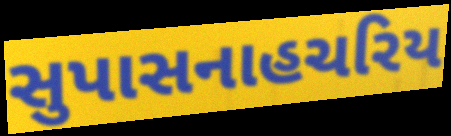
સુપાસનાહચરિય